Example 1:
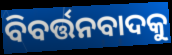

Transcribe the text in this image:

ବିବର୍ତ୍ତନବାଦକୁ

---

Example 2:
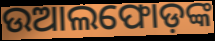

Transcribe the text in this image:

ଉଆଲଫୋଡ଼ଙ୍କ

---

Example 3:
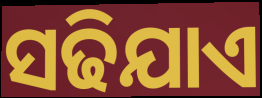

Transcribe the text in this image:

ସଢିଯାଏ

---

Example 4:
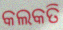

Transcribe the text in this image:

କଲକତି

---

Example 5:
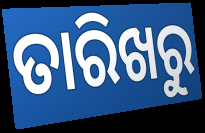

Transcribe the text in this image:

ତାରିଖରୁ